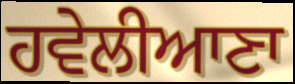
ਹਵੇਲੀਆਣਾ